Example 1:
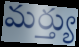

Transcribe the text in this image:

మర్త్యు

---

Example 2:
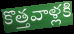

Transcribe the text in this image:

కొత్తవాళ్లకి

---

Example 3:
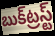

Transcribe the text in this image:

బుక్‌ట్రస్ట్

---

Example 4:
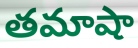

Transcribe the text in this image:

తమాషా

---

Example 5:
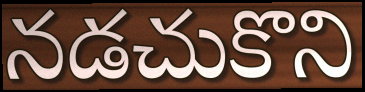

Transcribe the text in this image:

నడచుకొని